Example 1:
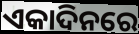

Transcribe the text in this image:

ଏକାଦିନରେ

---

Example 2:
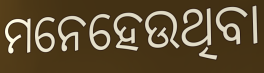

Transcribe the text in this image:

ମନେହେଉଥିବା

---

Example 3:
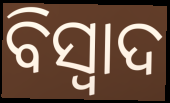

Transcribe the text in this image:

ବିସ୍ଵାଦ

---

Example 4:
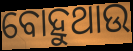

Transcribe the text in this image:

ବୋହୁଥାଉ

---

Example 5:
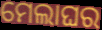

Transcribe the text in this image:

ମେଲାଘର